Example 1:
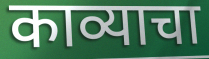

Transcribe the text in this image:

काव्याचा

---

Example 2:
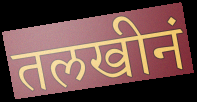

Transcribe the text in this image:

तलखीनं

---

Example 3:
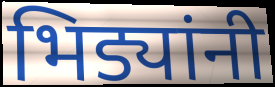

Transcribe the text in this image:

भिड्यांनी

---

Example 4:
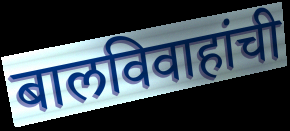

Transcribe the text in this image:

बालविवाहांची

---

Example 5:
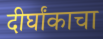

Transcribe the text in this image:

दीर्घांकाचा